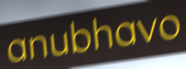
anubhavo